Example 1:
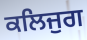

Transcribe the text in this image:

ਕਲਿਜੁਗ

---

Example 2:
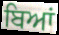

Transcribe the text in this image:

ਬਿਆਂ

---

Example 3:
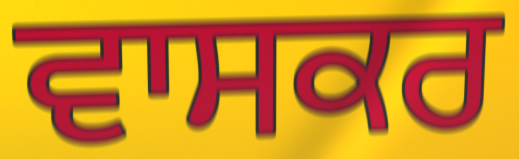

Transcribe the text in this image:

ਵਾਸਕਰ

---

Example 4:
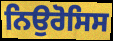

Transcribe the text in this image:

ਨਿਉਰੋਸਿਸ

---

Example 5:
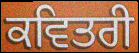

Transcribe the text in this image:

ਕਵਿਤਰੀ